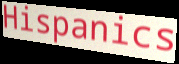
Hispanics